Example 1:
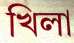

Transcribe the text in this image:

খিলা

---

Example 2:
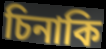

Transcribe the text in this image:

চিনাকি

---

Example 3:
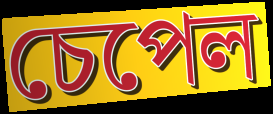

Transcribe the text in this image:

চেপেল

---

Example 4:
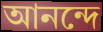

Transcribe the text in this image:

আনন্দে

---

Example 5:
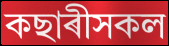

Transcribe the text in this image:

কছাৰীসকল